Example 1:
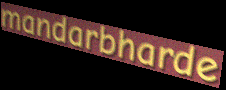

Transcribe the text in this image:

mandarbharde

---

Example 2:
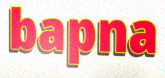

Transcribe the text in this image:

bapna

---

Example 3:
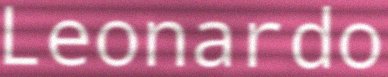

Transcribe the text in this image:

Leonardo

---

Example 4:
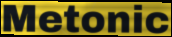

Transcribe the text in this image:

Metonic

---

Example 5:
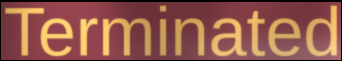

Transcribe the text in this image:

Terminated